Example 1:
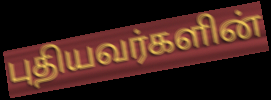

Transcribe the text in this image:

புதியவர்களின்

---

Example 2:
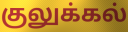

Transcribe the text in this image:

குலுக்கல்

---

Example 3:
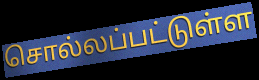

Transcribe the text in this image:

சொல்லப்பட்டுள்ள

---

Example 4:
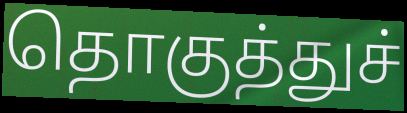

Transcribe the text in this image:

தொகுத்துச்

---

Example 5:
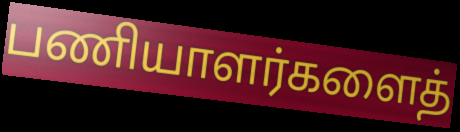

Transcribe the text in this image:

பணியாளர்களைத்